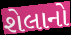
શેલાનો